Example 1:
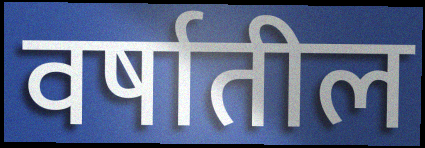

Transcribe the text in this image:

वर्षातील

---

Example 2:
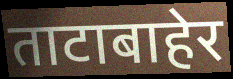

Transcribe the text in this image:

ताटाबाहेर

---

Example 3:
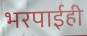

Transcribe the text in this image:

भरपाईही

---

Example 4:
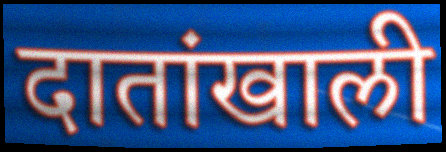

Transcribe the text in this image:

दातांखाली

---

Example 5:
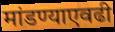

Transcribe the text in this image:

मांडण्याएवढी